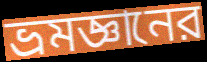
ভ্রমজ্ঞানের